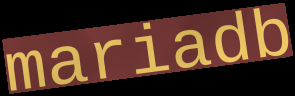
mariadb